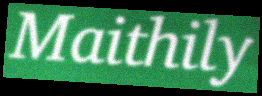
Maithily